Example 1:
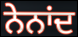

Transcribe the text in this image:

ਨੇਨਾਂਦ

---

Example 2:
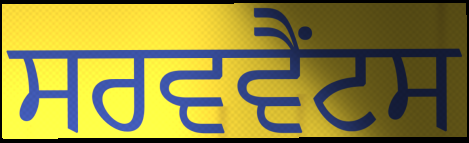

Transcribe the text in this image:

ਸਰਵਵੈਂਟਸ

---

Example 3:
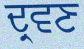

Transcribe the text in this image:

ਦ੍ਰਵਣ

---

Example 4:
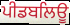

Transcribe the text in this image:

ਪੀਡਬਲਿਊ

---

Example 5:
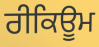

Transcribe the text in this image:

ਰੀਕਿਊਮ